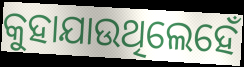
କୁହାଯାଉଥିଲେହେଁ